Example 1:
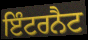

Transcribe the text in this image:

ਇੰਟਰਨੈਟ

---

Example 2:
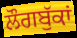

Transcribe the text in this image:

ਲੌਗਬੁੱਕਾਂ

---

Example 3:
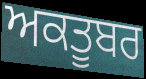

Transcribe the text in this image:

ਅਕਤੂਬਰ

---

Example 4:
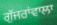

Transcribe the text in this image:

ਗੁੱਜਰਾਂਵਾਲਾ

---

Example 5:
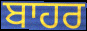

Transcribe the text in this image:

ਬਾਹਰ